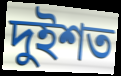
দুইশত